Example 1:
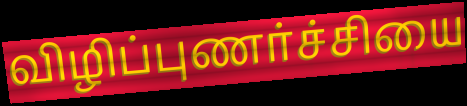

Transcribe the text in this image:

விழிப்புணர்ச்சியை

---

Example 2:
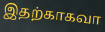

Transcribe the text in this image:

இதற்காகவா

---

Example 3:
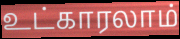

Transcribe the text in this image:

உட்காரலாம்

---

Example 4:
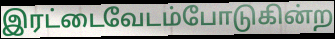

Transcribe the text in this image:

இரட்டைவேடம்போடுகின்ற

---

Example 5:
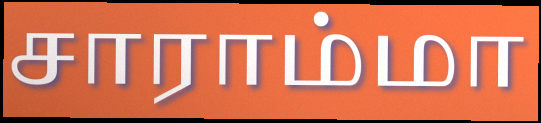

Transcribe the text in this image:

சாராம்மா